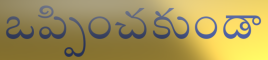
ఒప్పించకుండా